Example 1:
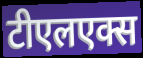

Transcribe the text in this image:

टीएलएक्स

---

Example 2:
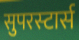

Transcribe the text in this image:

सुपरस्‍टार्स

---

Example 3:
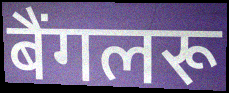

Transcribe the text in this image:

बैंगलरू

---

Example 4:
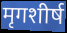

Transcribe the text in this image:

मृगशीर्ष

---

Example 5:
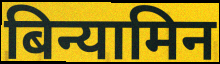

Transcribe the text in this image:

बिन्यामिन